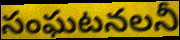
సంఘటనలనీ